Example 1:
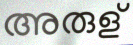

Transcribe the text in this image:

അരുള്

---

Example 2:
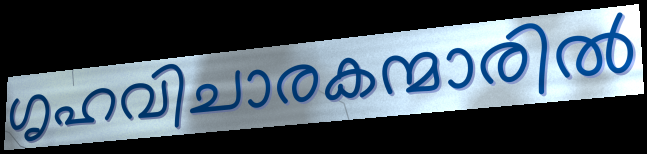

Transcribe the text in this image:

ഗൃഹവിചാരകന്മാരിൽ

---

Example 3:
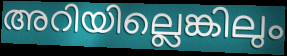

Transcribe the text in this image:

അറിയില്ലെങ്കിലും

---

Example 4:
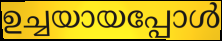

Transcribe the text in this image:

ഉച്ചയായപ്പോൾ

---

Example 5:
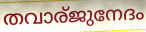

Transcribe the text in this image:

തവാര്ജുനേദം